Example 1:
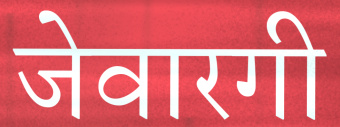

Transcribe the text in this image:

जेवारगी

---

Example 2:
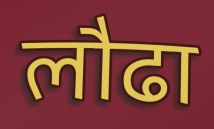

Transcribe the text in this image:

लौढा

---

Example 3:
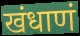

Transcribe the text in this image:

खंधाणं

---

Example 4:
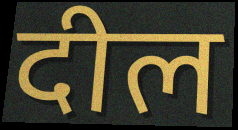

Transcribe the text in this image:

दील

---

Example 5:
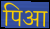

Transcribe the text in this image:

पिआ